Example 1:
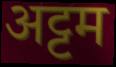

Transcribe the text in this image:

अट्टम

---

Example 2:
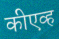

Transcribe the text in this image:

कीएव्ह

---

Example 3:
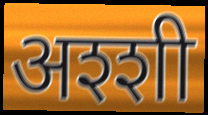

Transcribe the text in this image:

अश्शी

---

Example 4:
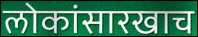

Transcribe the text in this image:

लोकांसारखाच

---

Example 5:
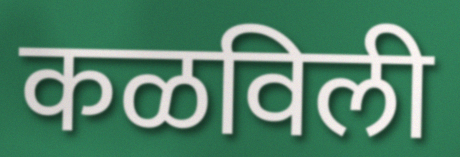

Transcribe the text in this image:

कळविली